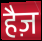
हैज़